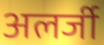
अलर्जी